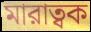
মারাত্বক